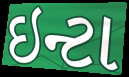
ઇન્ટા